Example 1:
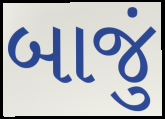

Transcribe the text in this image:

બાજું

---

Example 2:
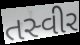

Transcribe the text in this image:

તસ્વીર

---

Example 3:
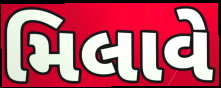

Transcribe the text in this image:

મિલાવે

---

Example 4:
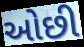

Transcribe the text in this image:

ઓછી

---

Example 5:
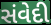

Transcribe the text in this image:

સંવેદી